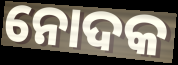
ନୋଦକ